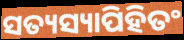
ସତ୍ୟସ୍ୟାପିହିତଂ